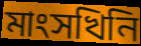
মাংসখিনি